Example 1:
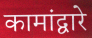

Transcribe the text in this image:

कामांद्वारे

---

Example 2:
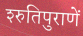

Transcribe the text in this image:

श्रुतिपुराणें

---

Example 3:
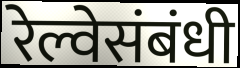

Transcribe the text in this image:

रेल्वेसंबंधी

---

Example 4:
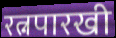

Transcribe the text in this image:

रत्नपारखी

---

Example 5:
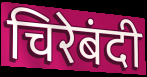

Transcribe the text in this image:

चिरेबंदी